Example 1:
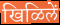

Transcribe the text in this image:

खिळिलें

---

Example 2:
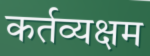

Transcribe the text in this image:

कर्तव्यक्षम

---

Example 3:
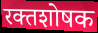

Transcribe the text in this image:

रक्तशोषक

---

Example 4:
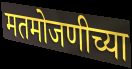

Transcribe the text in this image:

मतमोजणीच्या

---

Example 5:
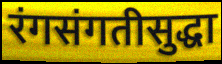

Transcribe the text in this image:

रंगसंगतीसुद्धा